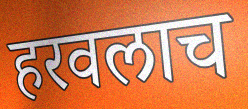
हरवलाच